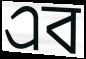
এব